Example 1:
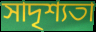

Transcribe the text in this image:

সাদৃশ্যতা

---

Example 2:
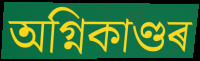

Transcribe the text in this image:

অগ্নিকাণ্ডৰ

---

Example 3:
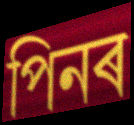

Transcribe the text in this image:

পিনৰ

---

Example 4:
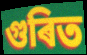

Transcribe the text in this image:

গুৰিত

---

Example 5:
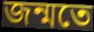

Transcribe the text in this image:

জন্মতে